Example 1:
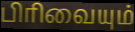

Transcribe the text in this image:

பிரிவையும்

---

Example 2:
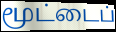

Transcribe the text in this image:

மூட்டைப்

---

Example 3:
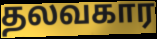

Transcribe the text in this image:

தலவகார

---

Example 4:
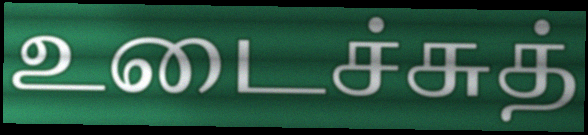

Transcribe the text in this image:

உடைச்சுத்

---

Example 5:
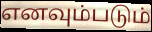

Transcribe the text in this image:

எனவும்படும்